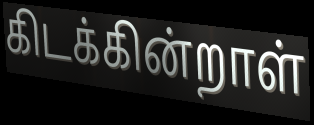
கிடக்கின்றாள்